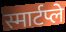
स्मार्टप्ले